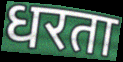
धरता